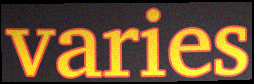
varies